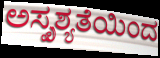
ಅಸ್ಪೃಶ್ಯತೆಯಿಂದ